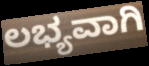
ಲಭ್ಯವಾಗಿ